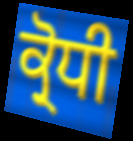
ਕ੍ਰੋਧੀ